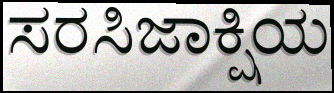
ಸರಸಿಜಾಕ್ಷಿಯ